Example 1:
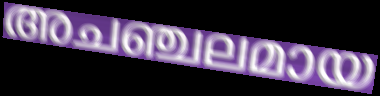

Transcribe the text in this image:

അചഞ്ചലമായ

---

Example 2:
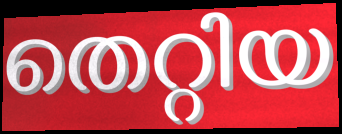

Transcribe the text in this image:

തെറ്റിയ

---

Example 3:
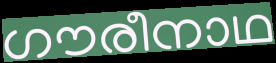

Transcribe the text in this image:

ഗൗരീനാഥ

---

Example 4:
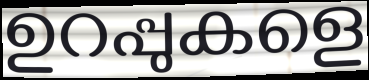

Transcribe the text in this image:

ഉറപ്പുകളെ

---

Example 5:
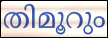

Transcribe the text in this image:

തിമൂറും